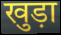
खुड़ा